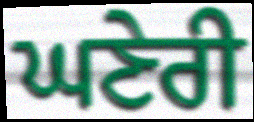
ਘਣੇਰੀ